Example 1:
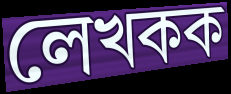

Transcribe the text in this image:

লেখকক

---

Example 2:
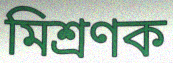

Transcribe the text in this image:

মিশ্ৰণক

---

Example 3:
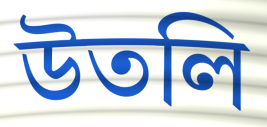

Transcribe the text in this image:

উতলি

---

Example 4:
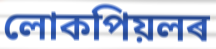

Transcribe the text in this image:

লোকপিয়লৰ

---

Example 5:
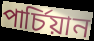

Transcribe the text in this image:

পাৰ্চিয়ান